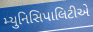
મ્યુનિસિપાલિટીએ